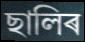
ছালিৰ